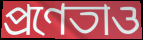
প্রণেতাও